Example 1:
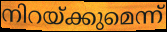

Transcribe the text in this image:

നിറയ്ക്കുമെന്ന്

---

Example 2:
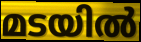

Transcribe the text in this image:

മടയിൽ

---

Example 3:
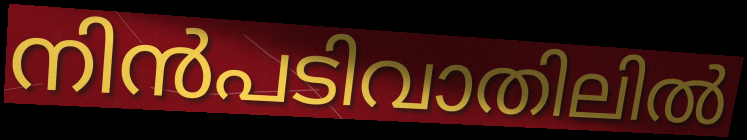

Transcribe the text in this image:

നിൻപടിവാതിലിൽ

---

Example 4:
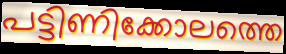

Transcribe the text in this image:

പട്ടിണിക്കോലത്തെ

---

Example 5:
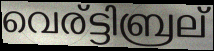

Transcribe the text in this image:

വെര്ട്ടിബ്രല്